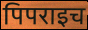
पिपराइच